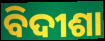
ବିଦୀଶା